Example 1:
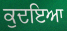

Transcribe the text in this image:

ਕੁਦਇਆ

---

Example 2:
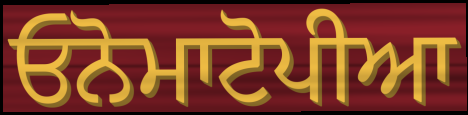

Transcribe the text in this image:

ਓਨੋਮਾਟੋਪੀਆ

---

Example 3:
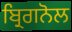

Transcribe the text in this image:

ਬ੍ਰਿਗਨੋਲ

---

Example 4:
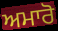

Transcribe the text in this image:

ਅਮਾਰੋ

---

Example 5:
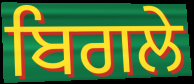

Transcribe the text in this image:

ਬਿਗਲੇ